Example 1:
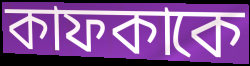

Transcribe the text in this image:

কাফকাকে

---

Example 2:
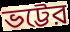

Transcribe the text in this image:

ভট্টের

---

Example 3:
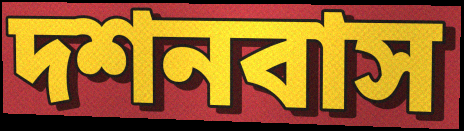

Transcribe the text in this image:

দশনবাস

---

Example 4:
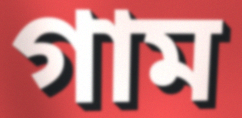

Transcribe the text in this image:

গাম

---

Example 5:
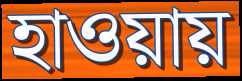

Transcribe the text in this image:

হাওয়ায়